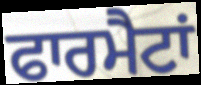
ਫਾਰਮੈਟਾਂ